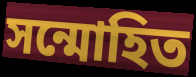
সন্মোহিত